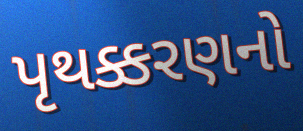
પૃથક્કરણનો